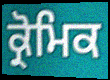
ਕ੍ਰੋਮਿਕ